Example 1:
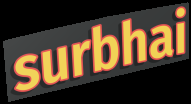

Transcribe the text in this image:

surbhai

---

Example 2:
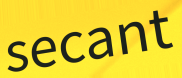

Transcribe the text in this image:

secant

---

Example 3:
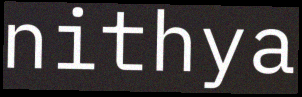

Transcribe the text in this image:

nithya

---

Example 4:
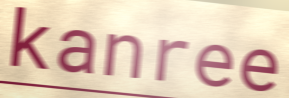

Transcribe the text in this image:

kanree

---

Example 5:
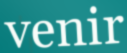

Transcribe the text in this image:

venir